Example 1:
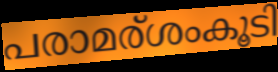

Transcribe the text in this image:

പരാമര്ശംകൂടി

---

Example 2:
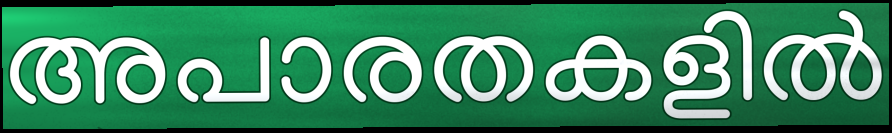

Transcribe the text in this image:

അപാരതകളിൽ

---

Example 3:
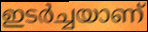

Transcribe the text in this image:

ഇടർച്ചയാണ്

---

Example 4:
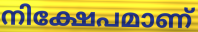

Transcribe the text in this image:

നിക്ഷേപമാണ്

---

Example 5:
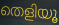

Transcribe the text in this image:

തെളിയൂ